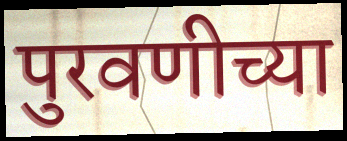
पुरवणीच्या